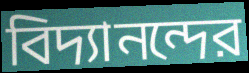
বিদ্যানন্দের